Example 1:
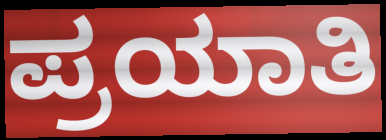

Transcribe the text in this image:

ಪ್ರಯಾತಿ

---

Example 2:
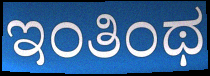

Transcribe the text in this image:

ಇಂತಿಂಥ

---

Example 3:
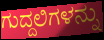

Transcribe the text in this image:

ಗುದ್ದಲಿಗಳನ್ನು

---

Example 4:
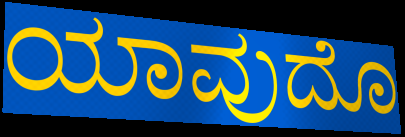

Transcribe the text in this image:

ಯಾವುದೊ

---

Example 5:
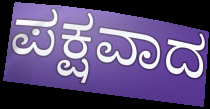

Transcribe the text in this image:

ಪಕ್ಷವಾದ